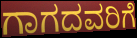
ಗಾಗದವರಿಗೆ